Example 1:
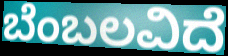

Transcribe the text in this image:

ಬೆಂಬಲವಿದೆ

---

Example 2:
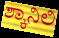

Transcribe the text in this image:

ಶ್ಕಾನಿಲಿ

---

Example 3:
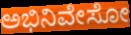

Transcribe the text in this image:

ಅಭಿನಿವೇಸೋ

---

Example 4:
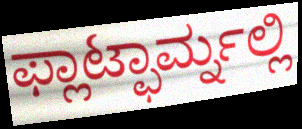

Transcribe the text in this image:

ಫ್ಲಾಟ್ಫಾರ್ಮ್ನಲ್ಲಿ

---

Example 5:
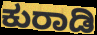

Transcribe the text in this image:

ಕುರಾಡಿ